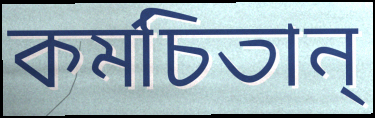
কর্মচিতান্